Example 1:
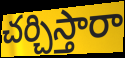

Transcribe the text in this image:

చర్చిస్తారా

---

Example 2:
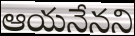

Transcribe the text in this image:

ఆయనేనని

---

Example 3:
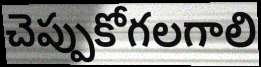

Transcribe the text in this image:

చెప్పుకోగలగాలి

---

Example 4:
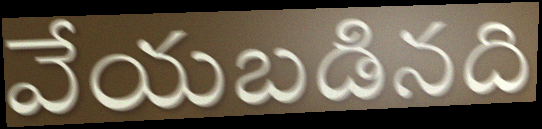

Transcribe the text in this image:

వేయబడినది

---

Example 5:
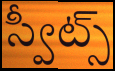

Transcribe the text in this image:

స్వీట్స్